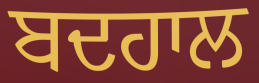
ਬਦਹਾਲ